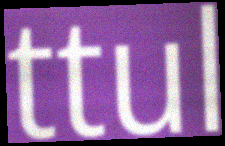
ttul